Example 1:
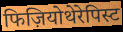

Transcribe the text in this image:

फिज़ियोथेरेपिस्ट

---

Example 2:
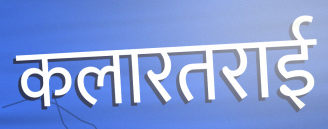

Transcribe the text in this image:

कलारतराई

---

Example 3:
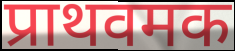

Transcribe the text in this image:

प्राथवमक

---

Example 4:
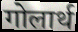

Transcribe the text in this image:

गोलार्थ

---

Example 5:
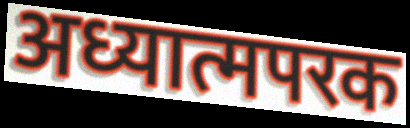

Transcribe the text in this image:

अध्यात्मपरक